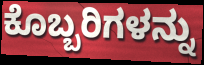
ಕೊಬ್ಬರಿಗಳನ್ನು